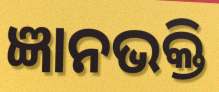
ଜ୍ଞାନଭକ୍ତି